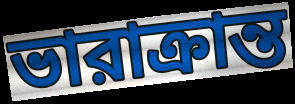
ভারাক্রান্ত